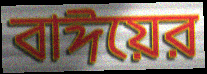
বাঈয়ের